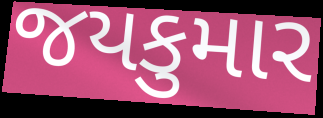
જયકુમાર